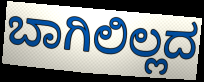
ಬಾಗಿಲಿಲ್ಲದ